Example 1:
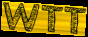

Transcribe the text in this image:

WTT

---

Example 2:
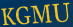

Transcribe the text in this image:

KGMU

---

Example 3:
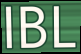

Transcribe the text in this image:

IBL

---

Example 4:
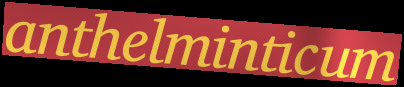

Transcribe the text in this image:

anthelminticum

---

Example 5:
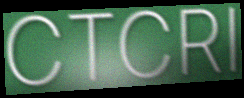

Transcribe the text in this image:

CTCRI